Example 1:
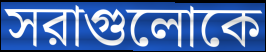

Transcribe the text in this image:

সরাগুলোকে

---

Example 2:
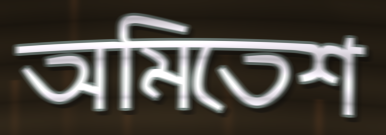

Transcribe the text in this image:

অমিতেশ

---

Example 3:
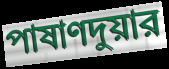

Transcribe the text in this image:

পাষাণদুয়ার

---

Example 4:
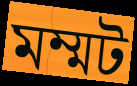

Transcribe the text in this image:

মম্মট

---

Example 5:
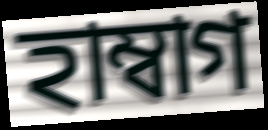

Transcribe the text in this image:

হাম্বাগ